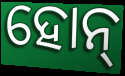
ହୋନ୍